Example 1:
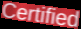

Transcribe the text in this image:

Certified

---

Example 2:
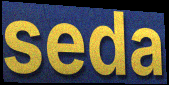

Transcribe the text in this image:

seda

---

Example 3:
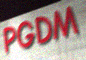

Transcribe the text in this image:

PGDM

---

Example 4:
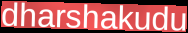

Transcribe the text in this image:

dharshakudu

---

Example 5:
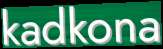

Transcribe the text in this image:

kadkona